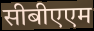
सीबीएएम